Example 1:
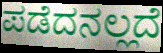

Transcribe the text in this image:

ಪಡೆದನಲ್ಲದೆ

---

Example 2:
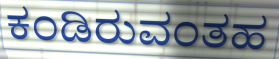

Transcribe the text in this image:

ಕಂಡಿರುವಂತಹ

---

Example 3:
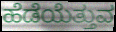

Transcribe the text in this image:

ಹೆಡೆಯೆತ್ತುವ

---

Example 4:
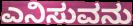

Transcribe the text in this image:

ಎನಿಸುವನು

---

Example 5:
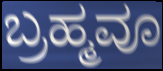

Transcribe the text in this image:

ಬ್ರಹ್ಮವೂ